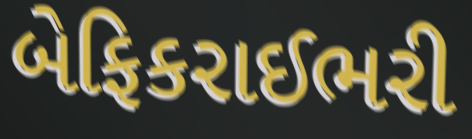
બેફિકરાઈભરી